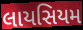
લાયસિયમ